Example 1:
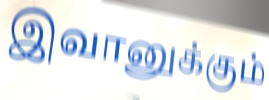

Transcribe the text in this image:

இவானுக்கும்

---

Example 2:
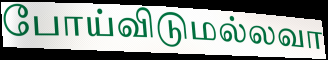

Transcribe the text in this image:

போய்விடுமல்லவா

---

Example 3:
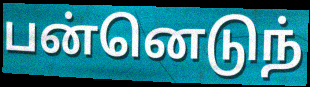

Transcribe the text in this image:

பன்னெடுந்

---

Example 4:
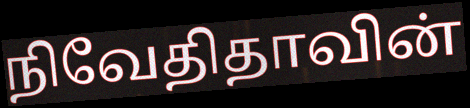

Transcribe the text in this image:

நிவேதிதாவின்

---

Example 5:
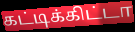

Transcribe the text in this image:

கட்டிக்கிட்டா